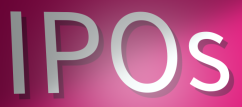
IPOs